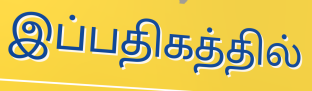
இப்பதிகத்தில்